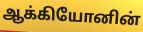
ஆக்கியோனின்